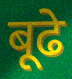
बूढे